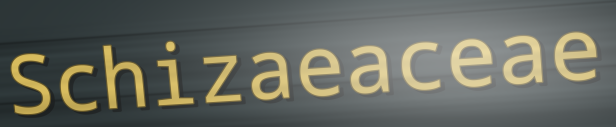
Schizaeaceae